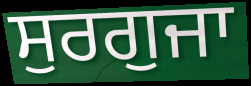
ਸੁਰਗੁਜਾ